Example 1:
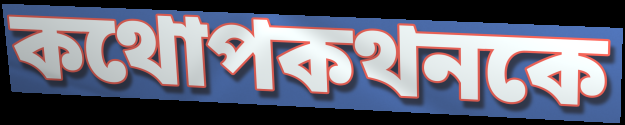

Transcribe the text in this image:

কথোপকথনকে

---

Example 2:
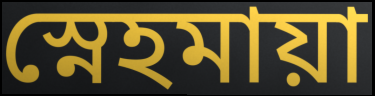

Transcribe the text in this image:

স্নেহমায়া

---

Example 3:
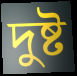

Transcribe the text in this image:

দুষ্ট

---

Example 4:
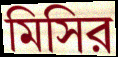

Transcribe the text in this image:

মিসির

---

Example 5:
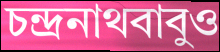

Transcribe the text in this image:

চন্দ্রনাথবাবুও